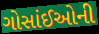
ગોસાંઈઓની